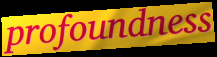
profoundness